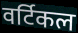
वर्टिकल